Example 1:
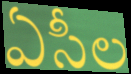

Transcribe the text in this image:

ఏసీల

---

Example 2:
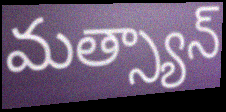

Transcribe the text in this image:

మత్స్యాన్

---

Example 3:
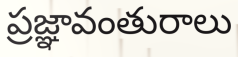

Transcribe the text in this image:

ప్రజ్ఞావంతురాలు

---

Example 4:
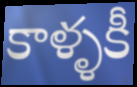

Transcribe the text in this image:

కాళ్ళకీ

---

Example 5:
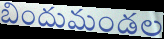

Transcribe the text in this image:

బిందుమండల